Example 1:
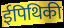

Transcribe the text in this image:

ईपिथिकी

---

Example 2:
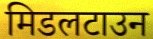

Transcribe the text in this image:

मिडलटाउन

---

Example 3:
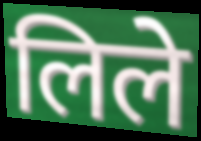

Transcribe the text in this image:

लिले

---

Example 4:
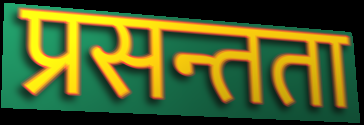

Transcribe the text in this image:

प्रसन्तता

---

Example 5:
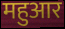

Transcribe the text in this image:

महुआर